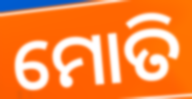
ମୋତି